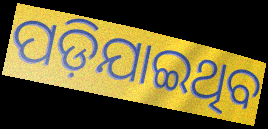
ପଡ଼ିଯାଇଥିବ